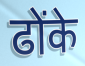
ढोंके